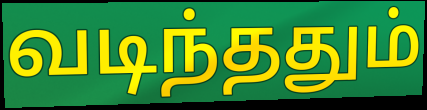
வடிந்ததும்